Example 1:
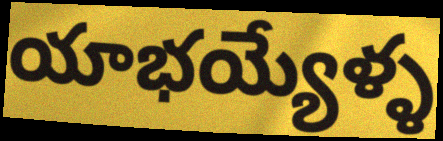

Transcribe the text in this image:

యాభయ్యేళ్ళ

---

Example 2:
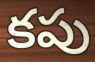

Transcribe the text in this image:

కపు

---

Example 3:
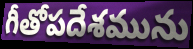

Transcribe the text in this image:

గీతోపదేశమును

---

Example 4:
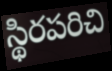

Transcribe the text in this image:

స్థిరపరిచి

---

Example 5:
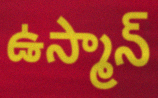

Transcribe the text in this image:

ఉస్మాన్